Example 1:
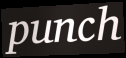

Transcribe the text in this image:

punch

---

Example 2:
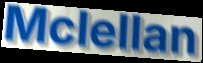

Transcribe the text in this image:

Mclellan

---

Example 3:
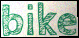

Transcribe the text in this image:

bike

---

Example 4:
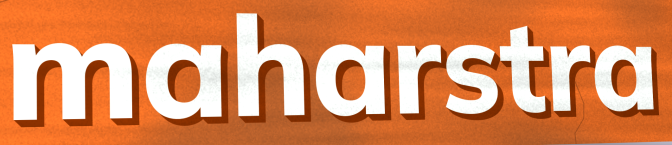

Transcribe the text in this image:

maharstra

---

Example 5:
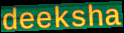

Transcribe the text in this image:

deeksha